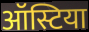
ऑस्टिया